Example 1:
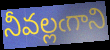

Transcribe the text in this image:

నీవల్లఁగాని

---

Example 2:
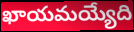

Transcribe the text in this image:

ఖాయమయ్యేది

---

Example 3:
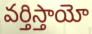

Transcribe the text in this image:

వర్తిస్తాయో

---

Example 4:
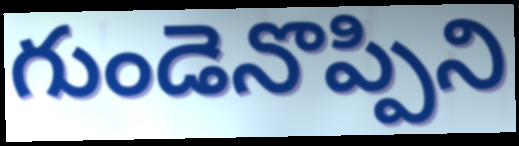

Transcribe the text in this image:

గుండెనొప్పిని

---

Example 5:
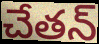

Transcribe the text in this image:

చేతన్